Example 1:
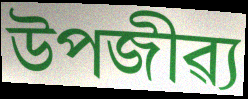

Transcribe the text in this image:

উপজীৱ্য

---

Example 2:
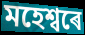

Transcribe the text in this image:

মহেশ্বৰে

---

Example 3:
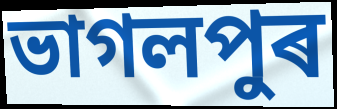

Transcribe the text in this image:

ভাগলপুৰ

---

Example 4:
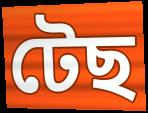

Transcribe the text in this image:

টেছ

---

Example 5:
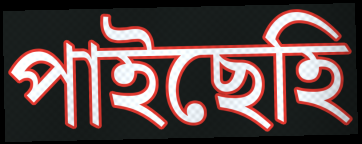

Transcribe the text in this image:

পাইছেহি